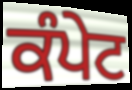
ਕੰਪੇਟ